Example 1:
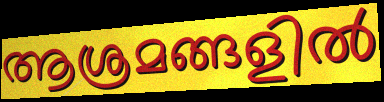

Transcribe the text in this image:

ആശ്രമങ്ങളിൽ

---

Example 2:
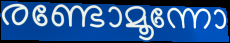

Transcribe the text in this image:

രണ്ടോമൂന്നോ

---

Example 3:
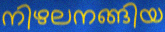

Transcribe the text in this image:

നിഴലനങ്ങിയ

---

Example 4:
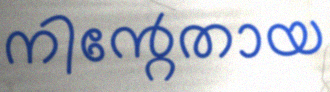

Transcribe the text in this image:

നിന്റേതായ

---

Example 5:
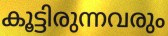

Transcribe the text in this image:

കൂട്ടിരുന്നവരും